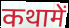
कथामें